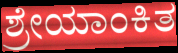
ಶ್ರೇಯಾಂಕಿತ